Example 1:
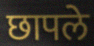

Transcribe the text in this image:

छापले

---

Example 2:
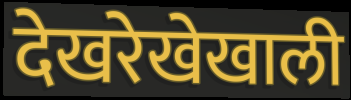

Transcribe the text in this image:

देखरेखेखाली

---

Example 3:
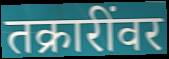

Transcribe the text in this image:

तक्रारींवर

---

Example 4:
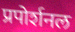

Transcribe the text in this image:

प्रपोर्शनल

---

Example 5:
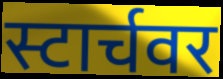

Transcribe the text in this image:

स्टार्चवर